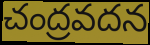
చంద్రవదన